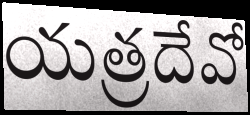
యత్రదేవో